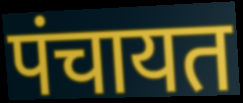
पंचायत